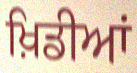
ਖ਼ਿਡੀਆਂ